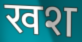
खश